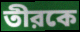
তীরকে